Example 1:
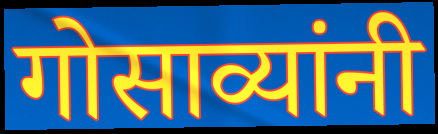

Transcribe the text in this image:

गोसाव्यांनी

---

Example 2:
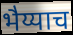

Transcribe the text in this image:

भैय्याच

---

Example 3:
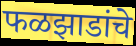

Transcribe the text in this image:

फळझाडांचे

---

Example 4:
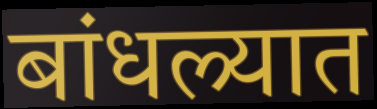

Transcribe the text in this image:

बांधल्यात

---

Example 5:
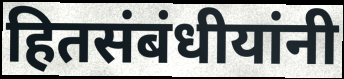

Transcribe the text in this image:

हितसंबंधीयांनी